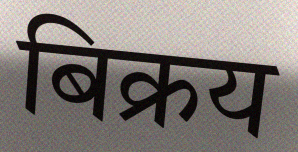
बिक्रय